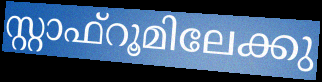
സ്റ്റാഫ്റൂമിലേക്കു